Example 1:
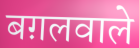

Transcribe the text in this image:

बग़लवाले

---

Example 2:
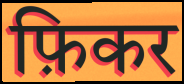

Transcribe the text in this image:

फ़िकर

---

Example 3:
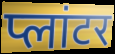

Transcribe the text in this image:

प्लांटर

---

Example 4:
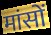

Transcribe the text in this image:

मांसों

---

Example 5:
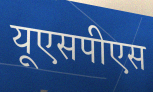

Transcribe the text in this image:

यूएसपीएस